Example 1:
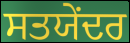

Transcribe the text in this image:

ਸਤਯੇਂਦਰ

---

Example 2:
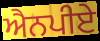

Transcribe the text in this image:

ਐਨਪੀਏ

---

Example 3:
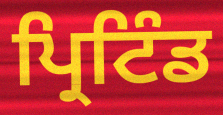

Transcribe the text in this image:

ਪ੍ਰਿਟਿੰਡ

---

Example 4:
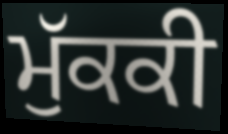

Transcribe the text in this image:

ਮੁੱਕਕੀ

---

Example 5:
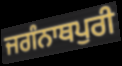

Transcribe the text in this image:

ਜਗੰਨਾਥਪੁਰੀ